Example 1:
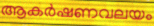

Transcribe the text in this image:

ആകർഷണവലയം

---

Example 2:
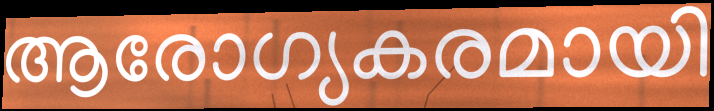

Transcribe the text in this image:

ആരോഗ്യകരമായി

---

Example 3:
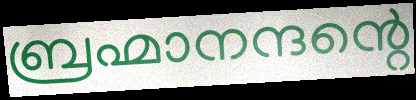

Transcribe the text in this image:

ബ്രഹ്മാനന്ദന്റെ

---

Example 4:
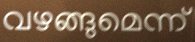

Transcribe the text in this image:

വഴങ്ങുമെന്ന്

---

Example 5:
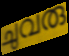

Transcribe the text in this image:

ചുവരു